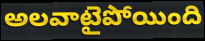
అలవాటైపోయింది